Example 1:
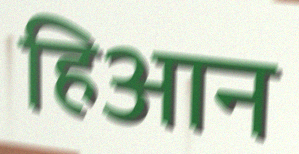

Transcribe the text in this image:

हिआन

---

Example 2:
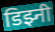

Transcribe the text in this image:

डिझ्नी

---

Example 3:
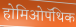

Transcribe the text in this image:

होमिओपॅथिक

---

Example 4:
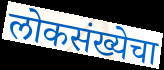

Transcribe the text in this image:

लोकसंख्येचा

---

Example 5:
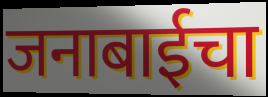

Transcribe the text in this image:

जनाबाईचा